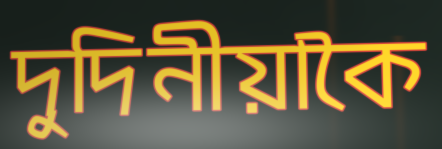
দুদিনীয়াকৈ